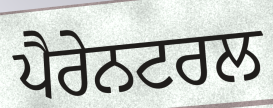
ਪੈਰੇਨਟਰਲ